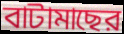
বাটামাছের